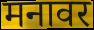
मनावर